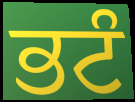
ਭਟੰ